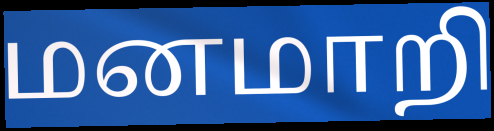
மனமாறி